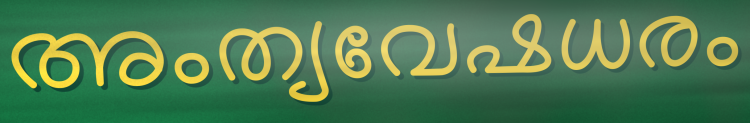
അംത്യവേഷധരം